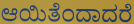
ಆಯಿತೆಂದಾದರೆ